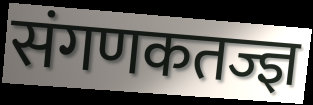
संगणकतज्ज्ञ